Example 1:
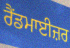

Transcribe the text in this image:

ਰੈਂਡਮਾਈਜ਼ਰ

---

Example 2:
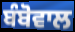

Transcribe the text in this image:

ਬੰਬੋਵਾਲ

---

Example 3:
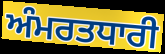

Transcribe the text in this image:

ਅੰਮਰਤਧਾਰੀ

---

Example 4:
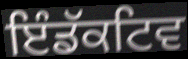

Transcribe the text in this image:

ਇੰਡੱਕਟਿਵ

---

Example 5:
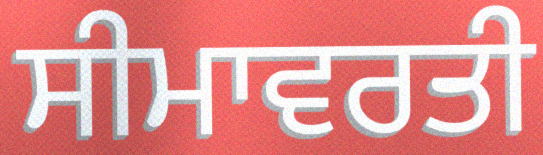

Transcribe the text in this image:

ਸੀਮਾਵਰਤੀ